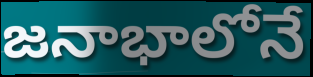
జనాభాలోనే